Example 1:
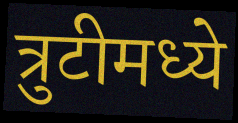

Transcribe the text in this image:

त्रुटीमध्ये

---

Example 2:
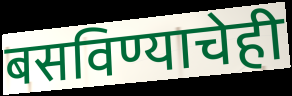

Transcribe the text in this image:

बसविण्याचेही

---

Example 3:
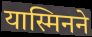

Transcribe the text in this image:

यास्मिनने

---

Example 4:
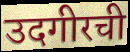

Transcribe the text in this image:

उदगीरची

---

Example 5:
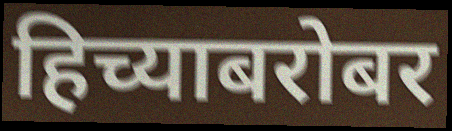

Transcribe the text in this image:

हिच्याबरोबर